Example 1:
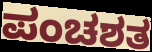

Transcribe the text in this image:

ಪಂಚಶತ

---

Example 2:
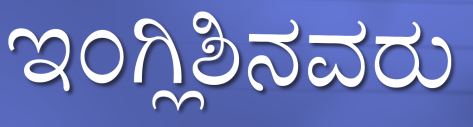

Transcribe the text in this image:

ಇಂಗ್ಲಿಶಿನವರು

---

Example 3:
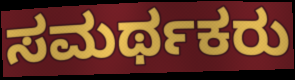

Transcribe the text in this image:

ಸಮರ್ಥಕರು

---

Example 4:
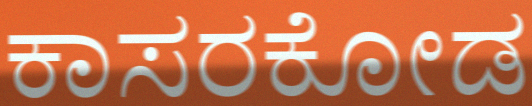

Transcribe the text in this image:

ಕಾಸರಕೋಡ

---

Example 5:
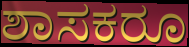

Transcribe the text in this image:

ಶಾಸಕರೂ